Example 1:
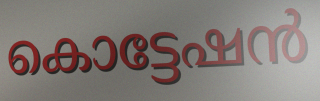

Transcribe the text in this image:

കൊട്ടേഷൻ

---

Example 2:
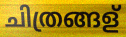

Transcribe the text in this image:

ചിത്രങ്ങള്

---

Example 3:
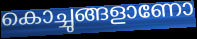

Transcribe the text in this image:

കൊച്ചുങ്ങളാണോ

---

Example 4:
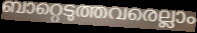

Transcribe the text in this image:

ബാറ്റെടുത്തവരെല്ലാം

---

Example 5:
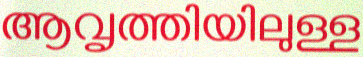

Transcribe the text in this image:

ആവൃത്തിയിലുള്ള